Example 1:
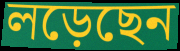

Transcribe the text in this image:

লড়েছেন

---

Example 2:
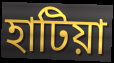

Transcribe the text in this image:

হাটিয়া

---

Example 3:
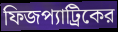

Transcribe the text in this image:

ফিজপ্যাট্রিকের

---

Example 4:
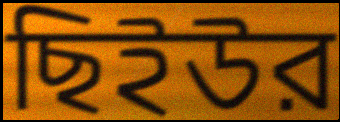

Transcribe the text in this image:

ছিইউর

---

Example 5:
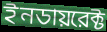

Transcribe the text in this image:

ইনডায়রেক্ট